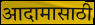
आदामासाठी